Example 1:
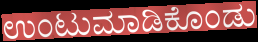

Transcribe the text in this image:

ಉಂಟುಮಾಡಿಕೊಂಡು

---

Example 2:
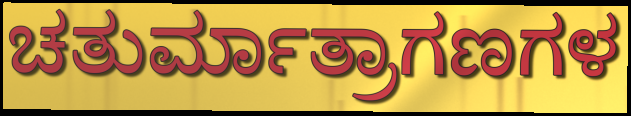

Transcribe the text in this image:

ಚತುರ್ಮಾತ್ರಾಗಣಗಳ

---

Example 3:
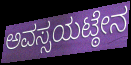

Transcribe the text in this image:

ಅವಸ್ಸಯಟ್ಠೇನ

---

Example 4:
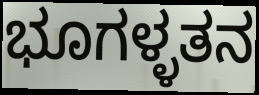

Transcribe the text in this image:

ಭೂಗಳ್ಳತನ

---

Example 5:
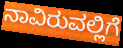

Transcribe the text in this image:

ನಾವಿರುವಲ್ಲಿಗೆ